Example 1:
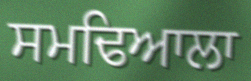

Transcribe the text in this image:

ਸਮਢਿਆਲਾ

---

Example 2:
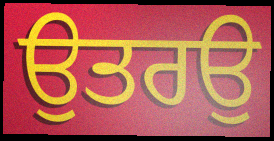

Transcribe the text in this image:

ਉਤਰਉ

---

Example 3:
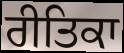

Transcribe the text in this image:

ਰੀਤਿਕਾ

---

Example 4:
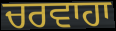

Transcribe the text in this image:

ਚਰਵਾਹਾ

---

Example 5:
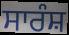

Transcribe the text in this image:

ਸਾਰੰਸ਼